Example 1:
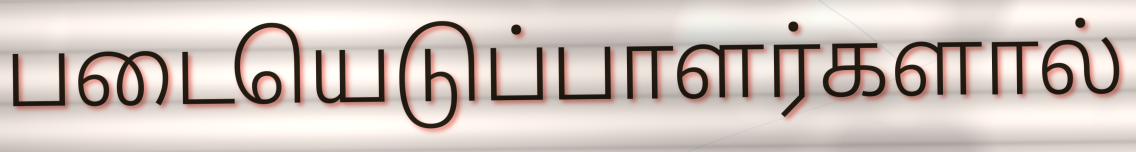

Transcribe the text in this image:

படையெடுப்பாளர்களால்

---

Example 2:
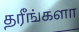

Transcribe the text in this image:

தரீங்களா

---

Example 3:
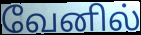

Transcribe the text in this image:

வேனில்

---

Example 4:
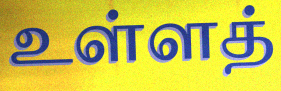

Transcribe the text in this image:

உள்ளத்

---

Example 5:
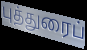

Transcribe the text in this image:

புத்துரைப்